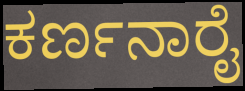
ಕರ್ಣನಾರೈ